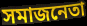
সমাজনেতা